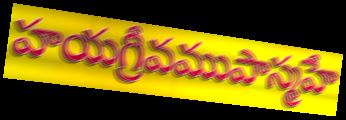
హయగ్రీవముపాస్మహే